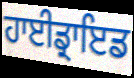
ਹਾਈਡ੍ਰਾਇਡ